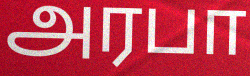
அரபா